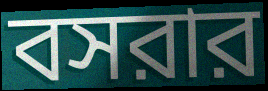
বসরার